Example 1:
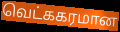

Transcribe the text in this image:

வெட்ககரமான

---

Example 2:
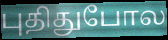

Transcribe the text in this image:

புதிதுபோல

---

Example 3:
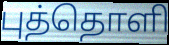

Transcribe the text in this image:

புத்தொளி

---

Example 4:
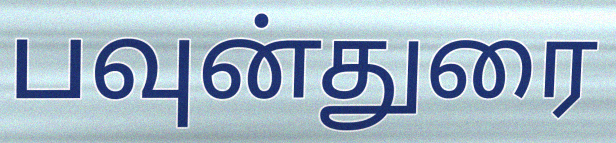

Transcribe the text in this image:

பவுன்துரை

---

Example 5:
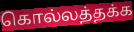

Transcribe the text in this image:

கொல்லத்தக்க